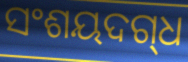
ସଂଶୟଦଗ୍‌ଧ